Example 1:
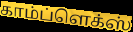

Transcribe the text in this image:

காம்ப்ளெக்ஸ்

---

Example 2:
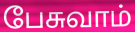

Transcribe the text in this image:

பேசுவாம்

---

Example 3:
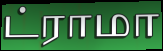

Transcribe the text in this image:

ட்ராமா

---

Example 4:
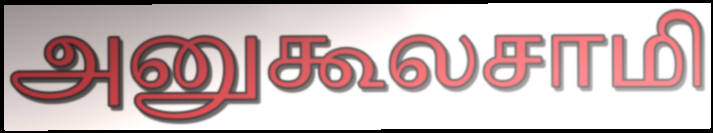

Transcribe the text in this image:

அனுகூலசாமி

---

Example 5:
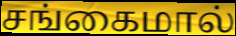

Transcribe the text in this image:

சங்கைமால்